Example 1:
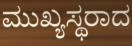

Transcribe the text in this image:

ಮುಖ್ಯಸ್ಥರಾದ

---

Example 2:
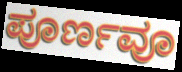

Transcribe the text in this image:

ಪೂರ್ಣವೂ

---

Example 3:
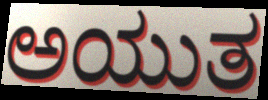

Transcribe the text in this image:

ಅಯುತ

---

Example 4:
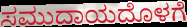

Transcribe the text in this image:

ಸಮುದಾಯದೊಳಗೆ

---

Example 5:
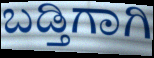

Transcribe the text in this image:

ಬಡ್ತಿಗಾಗಿ